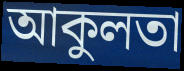
আকুলতা